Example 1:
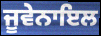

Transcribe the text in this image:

ਜੂਵੇਨਾਇਲ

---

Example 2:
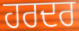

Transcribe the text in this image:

ਹਰਦਰ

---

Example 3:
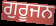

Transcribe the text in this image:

ਗੁਰੂਜਨ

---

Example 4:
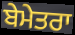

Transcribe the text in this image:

ਬੇਮੇਤਰਾ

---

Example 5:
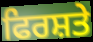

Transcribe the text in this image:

ਫਿਰਸ਼ਤੇ